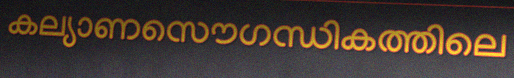
കല്യാണസൌഗന്ധികത്തിലെ